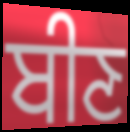
ਬੀਣ